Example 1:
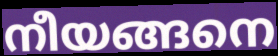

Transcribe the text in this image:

നീയങ്ങനെ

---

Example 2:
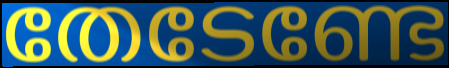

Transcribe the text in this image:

തേടേണ്ടേ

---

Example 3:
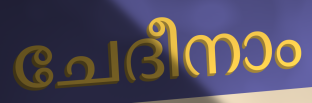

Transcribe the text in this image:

ചേദീനാം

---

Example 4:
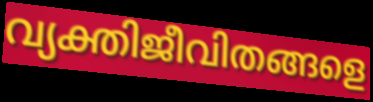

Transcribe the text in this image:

വ്യക്തിജീവിതങ്ങളെ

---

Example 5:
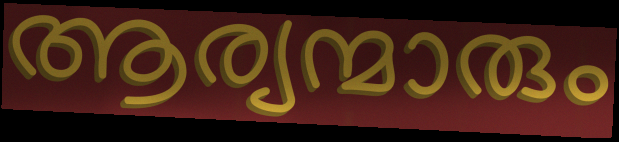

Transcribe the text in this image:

ആര്യന്മാരും